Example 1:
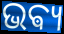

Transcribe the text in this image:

ଭଵ୍ୟ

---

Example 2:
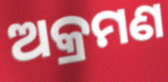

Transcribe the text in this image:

ଅକ୍ରମଣ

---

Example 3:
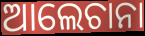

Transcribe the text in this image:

ଆଲେଚାନା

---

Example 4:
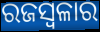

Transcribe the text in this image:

ରଜସ୍ୱଳାର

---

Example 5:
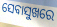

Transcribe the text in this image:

ସେବାସୁଖରେ